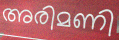
അരിമണി